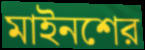
মাইনশের